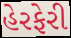
હેરફેરી